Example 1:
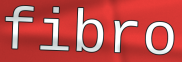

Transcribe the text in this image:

fibro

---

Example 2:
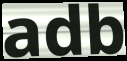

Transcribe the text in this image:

adb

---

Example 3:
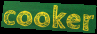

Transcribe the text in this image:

cooker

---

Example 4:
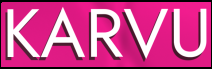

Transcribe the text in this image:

KARVU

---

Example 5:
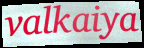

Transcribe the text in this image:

valkaiya